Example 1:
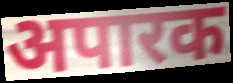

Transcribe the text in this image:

अपारक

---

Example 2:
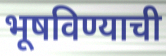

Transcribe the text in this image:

भूषविण्याची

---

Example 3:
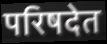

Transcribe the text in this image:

परिषदेत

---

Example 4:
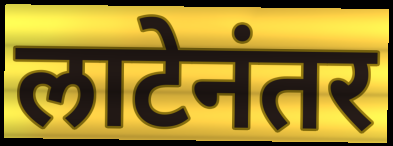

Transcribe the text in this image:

लाटेनंतर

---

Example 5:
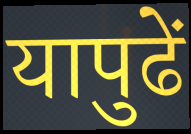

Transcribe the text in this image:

यापुढें